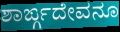
ಶಾರ್ಙ್ಗದೇವನೂ